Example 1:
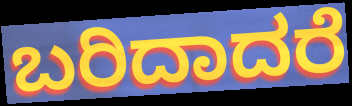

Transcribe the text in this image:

ಬರಿದಾದರೆ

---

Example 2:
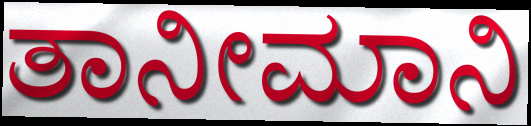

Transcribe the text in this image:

ತಾನೀಮಾನಿ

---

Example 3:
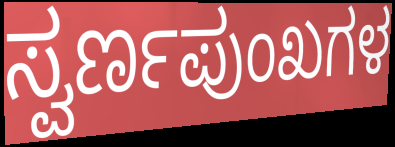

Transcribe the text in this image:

ಸ್ವರ್ಣಪುಂಖಗಳ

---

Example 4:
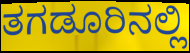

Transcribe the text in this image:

ತಗಡೂರಿನಲ್ಲಿ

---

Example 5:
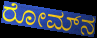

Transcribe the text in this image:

ರೋಮ್‌ನ